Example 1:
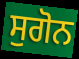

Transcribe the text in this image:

ਸੁਗੋਨ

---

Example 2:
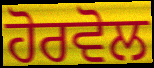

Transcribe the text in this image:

ਹੋਰਵੋਲ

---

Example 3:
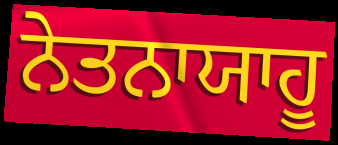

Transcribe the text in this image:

ਨੇਤਨਾਯਾਹੂ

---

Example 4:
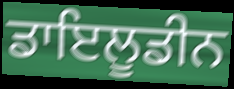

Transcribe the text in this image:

ਡਾਇਲੂਡੀਨ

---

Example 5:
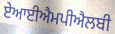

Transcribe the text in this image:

ਏਆਈਐਮਪੀਐਲਬੀ